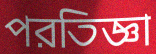
পরতিজ্ঞা